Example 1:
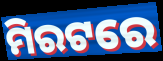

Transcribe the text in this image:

ମିରଟରେ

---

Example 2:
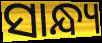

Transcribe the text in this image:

ସାନ୍ଧ୍ୟ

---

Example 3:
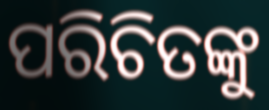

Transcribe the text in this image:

ପରିଚିତଙ୍କୁ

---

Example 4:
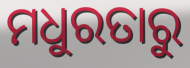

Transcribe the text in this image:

ମଧୁରତାରୁ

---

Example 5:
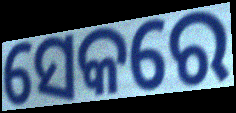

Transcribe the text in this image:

ସେକରେ